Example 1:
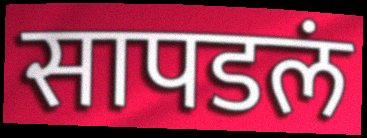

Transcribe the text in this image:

सापडलं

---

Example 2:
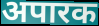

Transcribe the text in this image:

अपारक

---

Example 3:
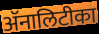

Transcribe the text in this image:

ॲनालिटीका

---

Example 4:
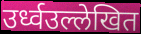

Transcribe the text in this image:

उर्ध्वउल्लेखित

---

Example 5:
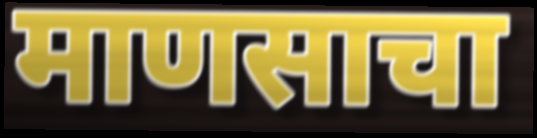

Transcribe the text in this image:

माणसाचा